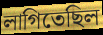
লাগিতেছিল